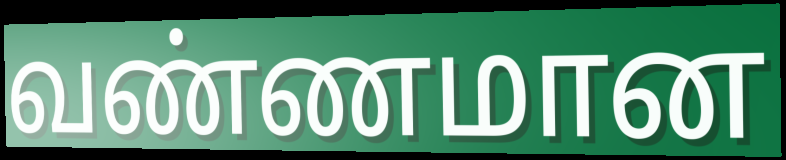
வண்ணமான